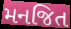
મનજિત